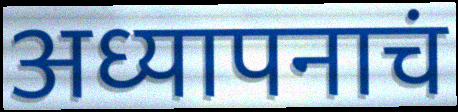
अध्यापनाचं